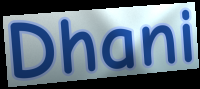
Dhani